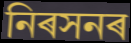
নিৰসনৰ